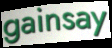
gainsay